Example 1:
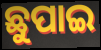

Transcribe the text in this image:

ଛୁପାଇ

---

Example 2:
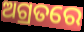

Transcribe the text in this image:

ଅଗ୍ରତରେ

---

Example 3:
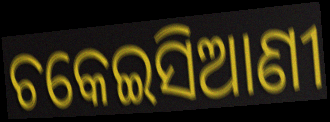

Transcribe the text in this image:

ଚକେଇସିଆଣୀ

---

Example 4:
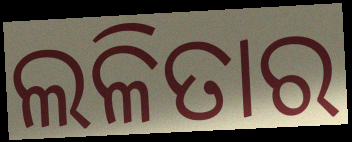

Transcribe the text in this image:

ଲଳିତାର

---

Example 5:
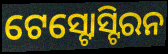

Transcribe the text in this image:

ଟେସ୍ଟୋସ୍ଟିରନ